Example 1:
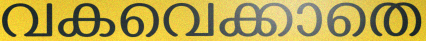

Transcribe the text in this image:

വകവെക്കാതെ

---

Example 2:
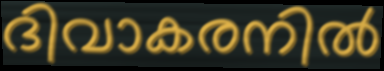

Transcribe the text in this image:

ദിവാകരനിൽ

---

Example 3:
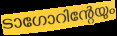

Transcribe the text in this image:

ടാഗോറിന്റേയും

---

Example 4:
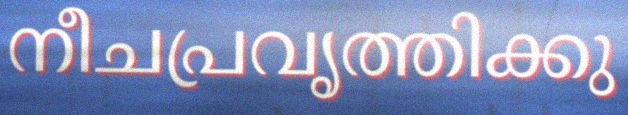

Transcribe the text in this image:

നീചപ്രവൃത്തിക്കു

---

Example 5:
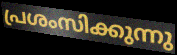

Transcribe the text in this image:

പ്രശംസിക്കുന്നു